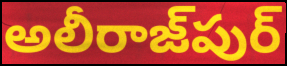
అలీరాజ్‌పుర్